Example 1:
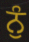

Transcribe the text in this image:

ਨੁੰ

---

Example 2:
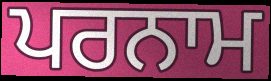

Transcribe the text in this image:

ਪਰਨਾਮ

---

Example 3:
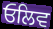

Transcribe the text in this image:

ਓਲਿਵ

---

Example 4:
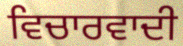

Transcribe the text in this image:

ਵਿਚਾਰਵਾਦੀ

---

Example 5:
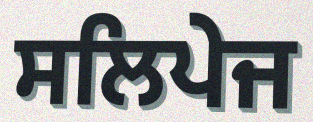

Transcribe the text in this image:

ਸਲਿਪੇਜ